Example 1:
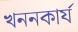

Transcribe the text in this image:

খননকার্য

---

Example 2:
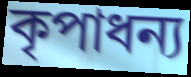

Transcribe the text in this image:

কৃপাধন্য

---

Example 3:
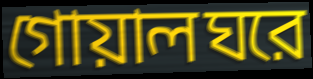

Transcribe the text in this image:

গোয়ালঘরে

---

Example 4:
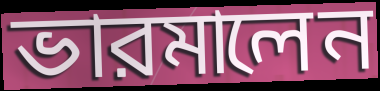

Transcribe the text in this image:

ভারমালেন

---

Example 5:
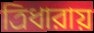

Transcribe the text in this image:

ত্রিধারায়